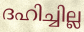
ദഹിച്ചില്ല